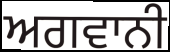
ਅਗਵਾਨੀ